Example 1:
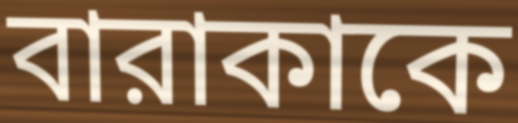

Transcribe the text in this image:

বারাকাকে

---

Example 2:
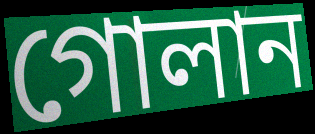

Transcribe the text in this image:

গোলান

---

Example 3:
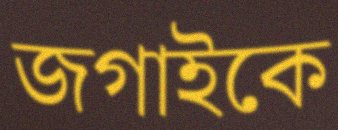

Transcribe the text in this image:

জগাইকে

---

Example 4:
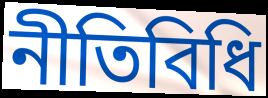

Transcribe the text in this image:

নীতিবিধি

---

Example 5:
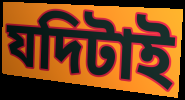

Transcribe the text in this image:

যদিটাই